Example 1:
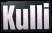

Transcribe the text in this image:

Kulli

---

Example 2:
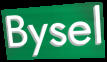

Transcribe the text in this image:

Bysel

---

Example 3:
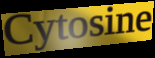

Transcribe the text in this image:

Cytosine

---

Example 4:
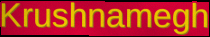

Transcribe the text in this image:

Krushnamegh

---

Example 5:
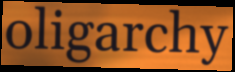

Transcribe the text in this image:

oligarchy